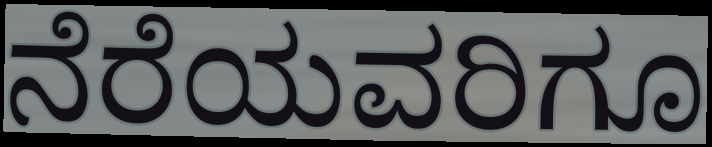
ನೆರೆಯವರಿಗೂ